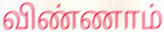
விண்ணாம்